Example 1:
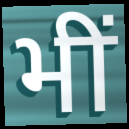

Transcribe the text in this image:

भीं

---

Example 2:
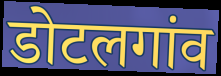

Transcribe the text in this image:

डोटलगांव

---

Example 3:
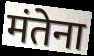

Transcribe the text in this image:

मंतेना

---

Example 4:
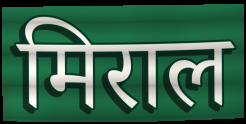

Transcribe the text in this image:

मिराल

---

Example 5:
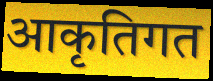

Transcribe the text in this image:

आकृतिगत